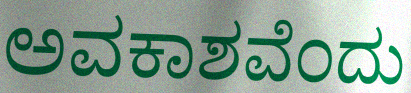
ಅವಕಾಶವೆಂದು